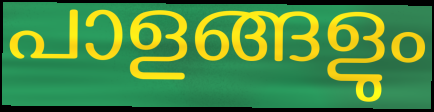
പാളങ്ങളും